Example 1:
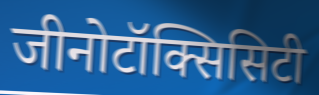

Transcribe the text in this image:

जीनोटॉक्सिसिटी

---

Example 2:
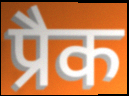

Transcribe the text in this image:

प्रैक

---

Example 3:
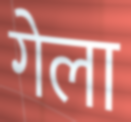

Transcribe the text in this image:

गेला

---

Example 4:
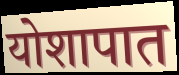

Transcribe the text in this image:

योशापात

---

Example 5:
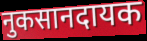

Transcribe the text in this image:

नुकसानदायक